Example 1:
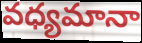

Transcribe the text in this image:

వధ్యమానా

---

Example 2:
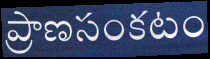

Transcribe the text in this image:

ప్రాణసంకటం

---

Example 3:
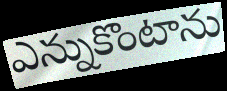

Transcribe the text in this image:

ఎన్నుకొంటాను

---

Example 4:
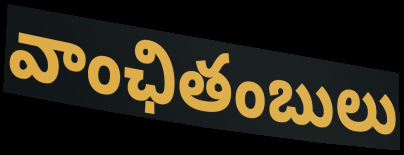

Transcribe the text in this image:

వాంఛితంబులు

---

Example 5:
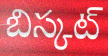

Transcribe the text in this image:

బిస్కట్